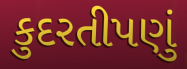
કુદરતીપણું